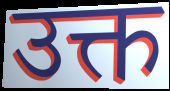
उक्त